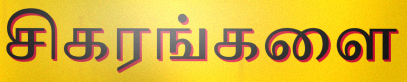
சிகரங்களை